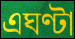
এঘণ্টা